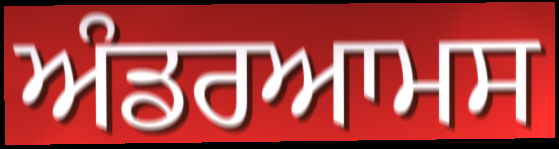
ਅੰਡਰਆਮਸ